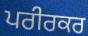
ਪਰੀਰਕਰ